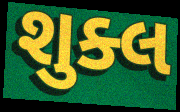
શુક્લ